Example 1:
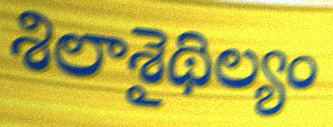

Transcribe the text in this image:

శిలాశైథిల్యం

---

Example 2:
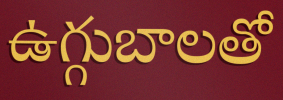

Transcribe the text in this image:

ఉగ్గుబాలతో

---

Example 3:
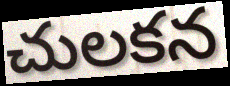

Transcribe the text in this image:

చులకన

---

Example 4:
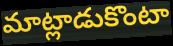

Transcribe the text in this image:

మాట్లాడుకొంటా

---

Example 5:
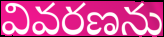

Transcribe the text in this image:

వివరణను